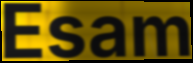
Esam